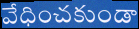
వేధించకుండా